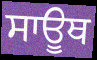
ਸਾਊਥ